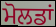
ਮੋਲਡਾਂ